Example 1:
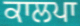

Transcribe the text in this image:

ਕਾਲਪਾ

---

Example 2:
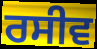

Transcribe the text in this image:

ਰਸੀਵ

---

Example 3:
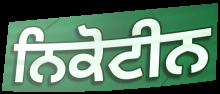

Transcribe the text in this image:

ਨਿਕੋਟੀਨ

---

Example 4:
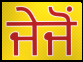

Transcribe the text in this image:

ਜੇਜੋਂ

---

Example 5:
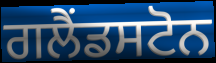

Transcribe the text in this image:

ਗਲੈਂਡਸਟੋਨ